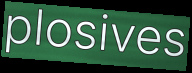
plosives